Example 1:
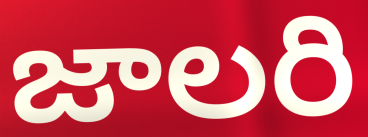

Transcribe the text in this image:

జాలరి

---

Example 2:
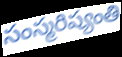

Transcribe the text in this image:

సంస్మరిష్యంతి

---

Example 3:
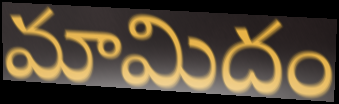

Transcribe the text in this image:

మామిదం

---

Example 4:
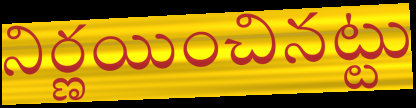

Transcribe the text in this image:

నిర్ణయించినట్టు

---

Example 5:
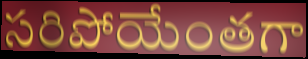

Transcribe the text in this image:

సరిపోయేంతగా